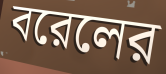
বরেলের